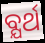
ବ୍ଯର୍ଥ